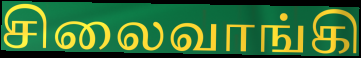
சிலைவாங்கி